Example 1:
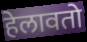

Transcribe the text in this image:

हेलावतो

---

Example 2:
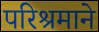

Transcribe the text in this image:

परिश्रमाने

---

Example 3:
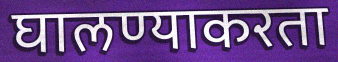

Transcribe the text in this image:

घालण्याकरता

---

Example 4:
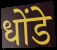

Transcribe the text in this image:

धोंडे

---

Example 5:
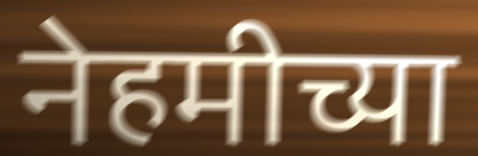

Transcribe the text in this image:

नेहमीच्या